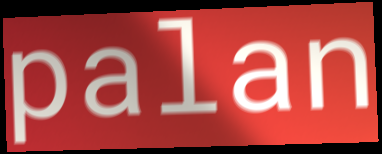
palan